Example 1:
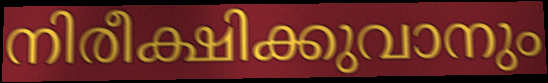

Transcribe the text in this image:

നിരീക്ഷിക്കുവാനും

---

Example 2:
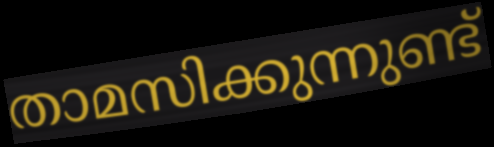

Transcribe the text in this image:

താമസിക്കുന്നുണ്ട്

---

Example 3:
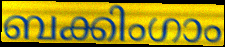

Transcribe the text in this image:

ബക്കിംഗാം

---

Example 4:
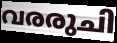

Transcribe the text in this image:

വരരുചി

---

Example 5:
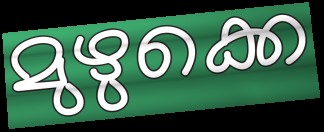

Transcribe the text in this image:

മുഴുക്കെ